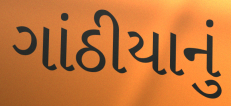
ગાંઠીયાનું